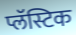
प्लॅस्टिक